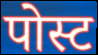
पोस्ट